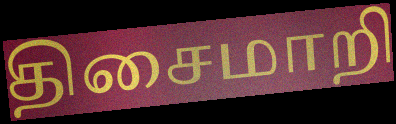
திசைமாறி